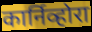
कार्निव्होरा